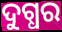
ଦୁଗ୍ଧର